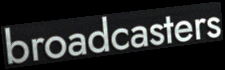
broadcasters